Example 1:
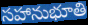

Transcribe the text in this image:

సహానుభూతి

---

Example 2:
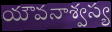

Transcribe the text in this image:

యౌవనాశ్వస్య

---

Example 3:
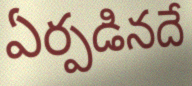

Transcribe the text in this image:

ఏర్పడినదే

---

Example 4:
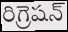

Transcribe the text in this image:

రిగ్రెషన్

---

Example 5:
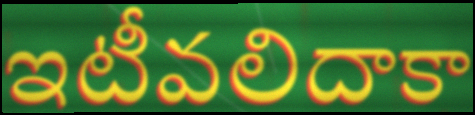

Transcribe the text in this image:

ఇటీవలిదాకా